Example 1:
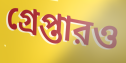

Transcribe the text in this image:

গ্রেপ্তারও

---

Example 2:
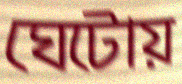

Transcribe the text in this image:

ঘেটোয়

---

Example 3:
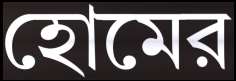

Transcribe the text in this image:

হোমের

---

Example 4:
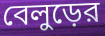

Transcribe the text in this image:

বেলুড়ের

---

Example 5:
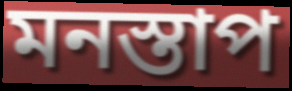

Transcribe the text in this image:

মনস্তাপ